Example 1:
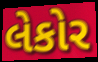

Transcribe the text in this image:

લેકોર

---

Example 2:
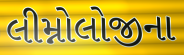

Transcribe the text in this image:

લીમ્નોલોજીના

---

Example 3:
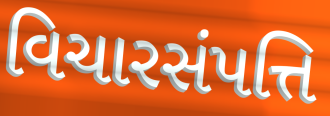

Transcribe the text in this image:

વિચારસંપત્તિ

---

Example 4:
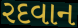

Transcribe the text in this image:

રદવાન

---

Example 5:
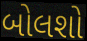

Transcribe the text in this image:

બોલશો